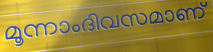
മൂന്നാംദിവസമാണ്